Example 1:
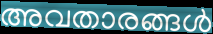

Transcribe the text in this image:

അവതാരങ്ങൾ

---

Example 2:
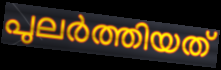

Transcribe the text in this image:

പുലർത്തിയത്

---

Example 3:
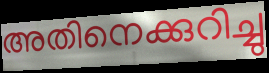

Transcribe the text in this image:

അതിനെക്കുറിച്ചു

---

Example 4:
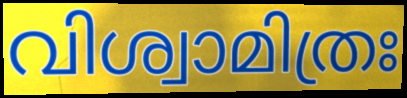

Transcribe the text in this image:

വിശ്വാമിത്രഃ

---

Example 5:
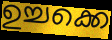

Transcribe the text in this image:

ഉച്ചക്കെ